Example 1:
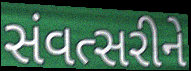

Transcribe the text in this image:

સંવત્સરીને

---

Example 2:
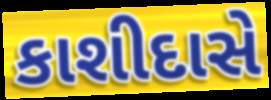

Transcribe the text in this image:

કાશીદાસે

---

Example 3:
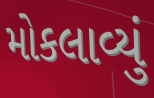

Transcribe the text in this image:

મોકલાવ્યું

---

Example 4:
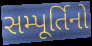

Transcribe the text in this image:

સમ્પૂર્તિનો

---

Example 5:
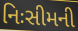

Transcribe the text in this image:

નિઃસીમની